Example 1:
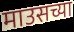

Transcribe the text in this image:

माउसच्या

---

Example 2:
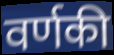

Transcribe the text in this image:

वर्णकी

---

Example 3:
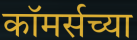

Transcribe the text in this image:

कॉमर्सच्या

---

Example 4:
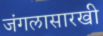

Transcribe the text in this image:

जंगलासारखी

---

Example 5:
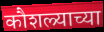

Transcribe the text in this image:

कौशल्याच्या